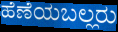
ಹೆಣೆಯಬಲ್ಲರು